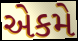
એકમે